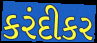
કરંદીકર